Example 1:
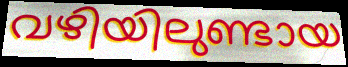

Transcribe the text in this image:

വഴിയിലുണ്ടായ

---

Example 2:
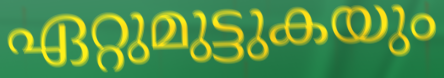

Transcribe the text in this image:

ഏറ്റുമുട്ടുകയും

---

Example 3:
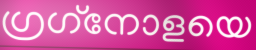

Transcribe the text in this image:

ഗ്രഗ്‌നോളയെ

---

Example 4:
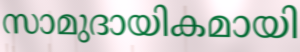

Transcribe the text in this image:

സാമുദായികമായി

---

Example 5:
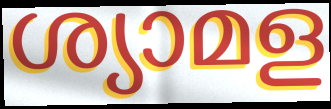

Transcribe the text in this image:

ശ്യാമള